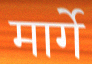
मार्गे